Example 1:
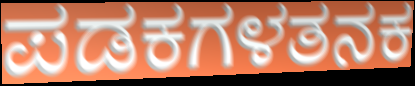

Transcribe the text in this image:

ಪಡಕಗಳತನಕ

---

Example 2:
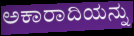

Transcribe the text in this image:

ಅಕಾರಾದಿಯನ್ನು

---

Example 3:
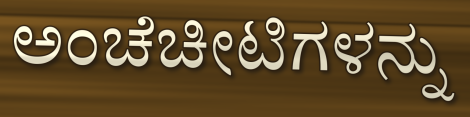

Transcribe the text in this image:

ಅಂಚೆಚೀಟಿಗಳನ್ನು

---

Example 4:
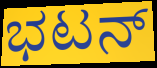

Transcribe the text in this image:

ಭಟನ್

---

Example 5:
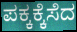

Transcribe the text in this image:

ಪಕ್ಕಕ್ಕೆಸೆದ